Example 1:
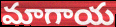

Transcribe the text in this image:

మాగాయ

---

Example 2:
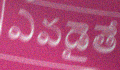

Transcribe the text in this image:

ఎవడైతే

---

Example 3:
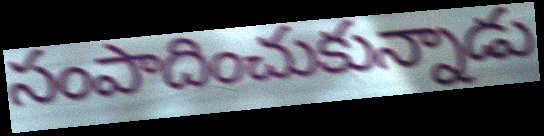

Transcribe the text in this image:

సంపాదించుకున్నాడు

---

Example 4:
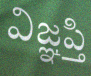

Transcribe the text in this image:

విజ్ఞప్తి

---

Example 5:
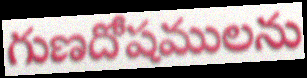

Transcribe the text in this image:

గుణదోషములను